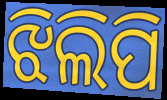
ଝିଲିପି